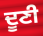
ਦੂਣੀ